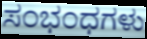
ಸಂಭಂಧಗಳು